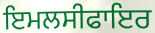
ਇਮਲਸੀਫਾਇਰ